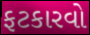
ફટકારવો